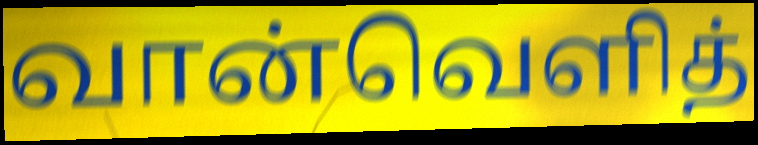
வான்வெளித்